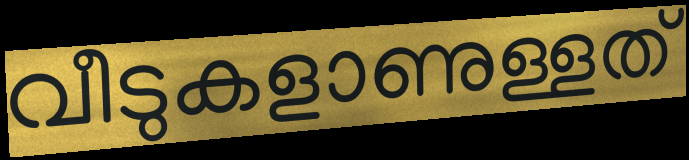
വീടുകളാണുള്ളത്